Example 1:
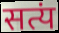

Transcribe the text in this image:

सत्यं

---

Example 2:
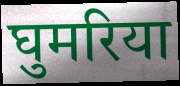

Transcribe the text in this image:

घुमरिया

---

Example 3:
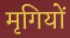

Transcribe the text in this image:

मृगियों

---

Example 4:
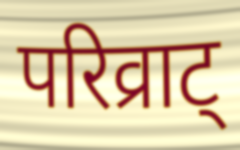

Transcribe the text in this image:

परिव्राट्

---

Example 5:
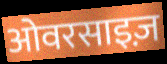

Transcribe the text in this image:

ओवरसाइज़